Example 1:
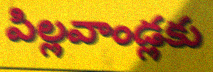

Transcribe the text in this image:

పిల్లవాండ్లకు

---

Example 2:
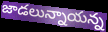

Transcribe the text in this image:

జాడలున్నాయన్న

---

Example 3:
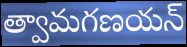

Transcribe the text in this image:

త్వామగణయన్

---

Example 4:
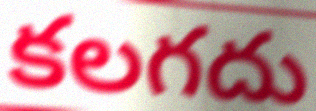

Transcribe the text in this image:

కలగదు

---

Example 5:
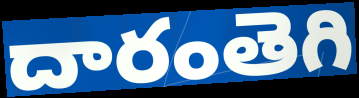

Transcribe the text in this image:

దారంతెగి